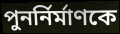
পুনর্নির্মাণকে